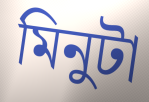
মিনুটা